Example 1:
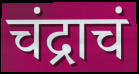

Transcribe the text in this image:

चंद्राचं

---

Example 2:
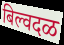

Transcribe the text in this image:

बिल्वदळ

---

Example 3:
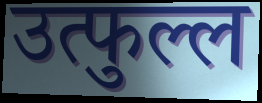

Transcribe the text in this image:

उत्फुल्ल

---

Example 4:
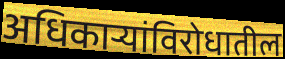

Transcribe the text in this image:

अधिकाऱ्यांविरोधातील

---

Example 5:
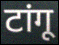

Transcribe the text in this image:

टांगू